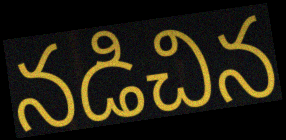
నడిచిన